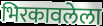
भिरकावलेला